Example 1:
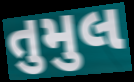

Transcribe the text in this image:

તુમુલ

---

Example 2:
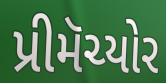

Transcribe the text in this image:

પ્રીમૅચ્યોર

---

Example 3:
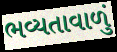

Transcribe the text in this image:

ભવ્યતાવાળું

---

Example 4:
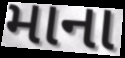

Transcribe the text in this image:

માના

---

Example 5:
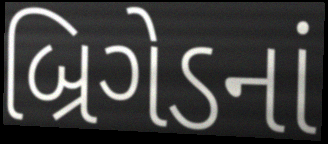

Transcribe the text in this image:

બ્રિગેડનાં